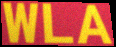
WLA